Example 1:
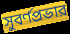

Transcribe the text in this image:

সুবর্ণপ্রভার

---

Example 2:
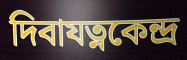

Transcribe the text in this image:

দিবাযত্নকেন্দ্র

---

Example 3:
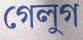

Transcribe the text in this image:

গেলুগ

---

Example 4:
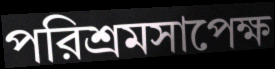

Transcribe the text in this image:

পরিশ্রমসাপেক্ষ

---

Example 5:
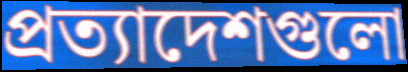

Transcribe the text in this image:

প্রত্যাদেশগুলো